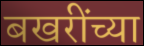
बखरींच्या